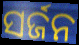
ସର୍ଜନ